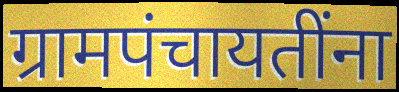
ग्रामपंचायतींना